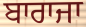
ਬਾਰਾਜਾ